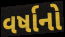
વર્ષાનો